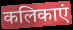
कलिकाएं